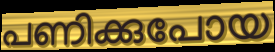
പണിക്കുപോയ